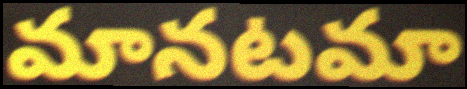
మానటమా